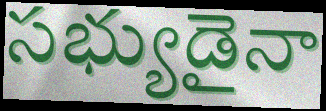
సభ్యుడైనా